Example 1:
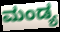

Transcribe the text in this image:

ಮಂಡ್ಯ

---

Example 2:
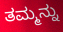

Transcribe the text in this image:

ತಮ್ಮನ್ನು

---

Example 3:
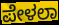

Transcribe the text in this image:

ಪೇಳಲಾ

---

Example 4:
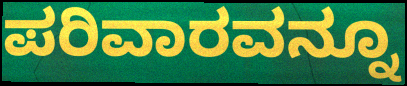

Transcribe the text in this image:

ಪರಿವಾರವನ್ನೂ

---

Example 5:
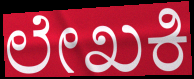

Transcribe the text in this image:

ಲೇಖಕಿ